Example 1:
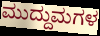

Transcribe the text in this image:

ಮುದ್ದುಮಗಳ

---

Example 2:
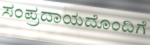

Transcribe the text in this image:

ಸಂಪ್ರದಾಯದೊಂದಿಗೆ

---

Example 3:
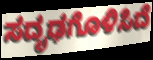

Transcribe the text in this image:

ಸದೃಢಗೊಳಿಸಿದೆ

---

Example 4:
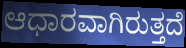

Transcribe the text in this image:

ಆಧಾರವಾಗಿರುತ್ತದೆ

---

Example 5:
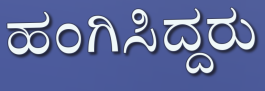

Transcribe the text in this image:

ಹಂಗಿಸಿದ್ದರು